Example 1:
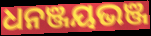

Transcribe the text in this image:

ଧନଞ୍ଜୟଭଞ୍ଜ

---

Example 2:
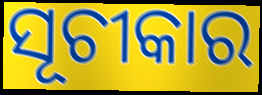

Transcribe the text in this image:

ସୂଚୀକାର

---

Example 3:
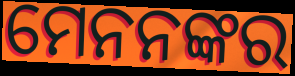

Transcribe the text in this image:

ମେନନଙ୍କର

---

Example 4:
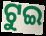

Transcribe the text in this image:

ଟୁଇ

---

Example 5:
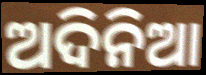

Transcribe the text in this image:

ଅଦିନିଆ